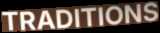
TRADITIONS